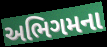
અભિગમના